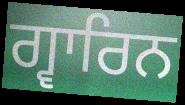
ਗ੍ਵਾਰਿਨ